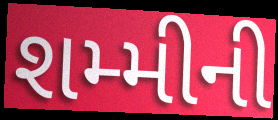
શમ્મીની